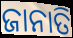
ଜାନାତି